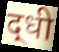
द्धी